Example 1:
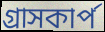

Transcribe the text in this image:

গ্রাসকার্প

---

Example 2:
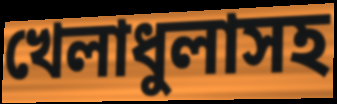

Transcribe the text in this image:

খেলাধুলাসহ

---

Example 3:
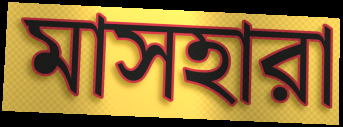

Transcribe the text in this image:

মাসহারা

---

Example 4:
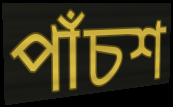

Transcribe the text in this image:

পাঁচশ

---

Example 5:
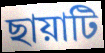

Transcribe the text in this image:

ছায়াটি